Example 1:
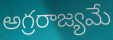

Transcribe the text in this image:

అగ్రరాజ్యమే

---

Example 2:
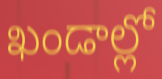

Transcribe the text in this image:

ఖండాల్లో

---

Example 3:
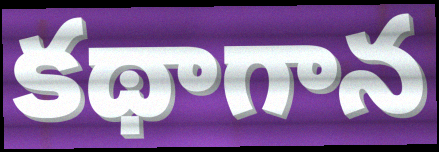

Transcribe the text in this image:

కథాగాన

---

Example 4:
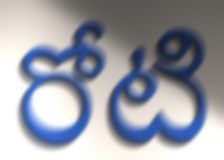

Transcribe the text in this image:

రోటి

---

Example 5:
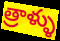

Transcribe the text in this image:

త్రాళ్ళు